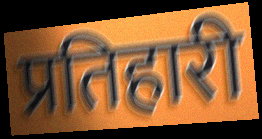
प्रतिहारी